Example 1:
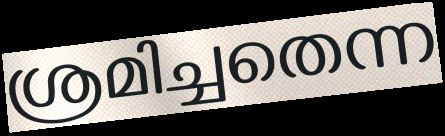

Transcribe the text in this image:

ശ്രമിച്ചതെന്ന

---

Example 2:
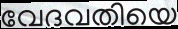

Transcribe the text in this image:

വേദവതിയെ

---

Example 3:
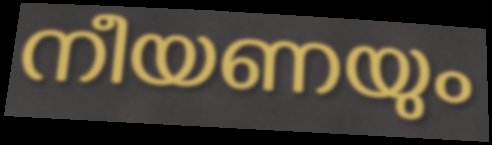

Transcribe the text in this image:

നീയണയും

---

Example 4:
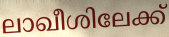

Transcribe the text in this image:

ലാഖീശിലേക്ക്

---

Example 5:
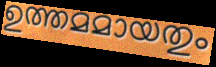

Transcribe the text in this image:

ഉത്തമമായതും